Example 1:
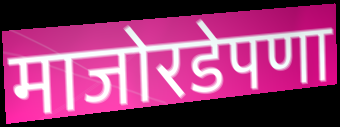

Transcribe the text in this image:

माजोरडेपणा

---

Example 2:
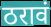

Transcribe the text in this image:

ठरावं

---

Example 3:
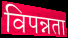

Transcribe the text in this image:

विपन्नता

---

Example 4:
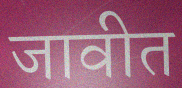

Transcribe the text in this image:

जावीत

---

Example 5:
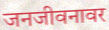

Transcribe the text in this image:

जनजीवनावर